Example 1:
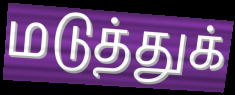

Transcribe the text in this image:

மடுத்துக்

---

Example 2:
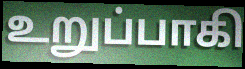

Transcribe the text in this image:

உறுப்பாகி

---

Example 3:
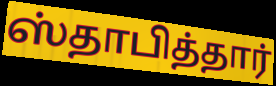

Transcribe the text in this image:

ஸ்தாபித்தார்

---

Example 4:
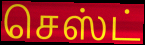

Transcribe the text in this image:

செஸ்ட்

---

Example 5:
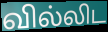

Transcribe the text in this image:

வில்லிட